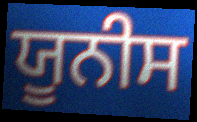
ਯੂਨੀਸ